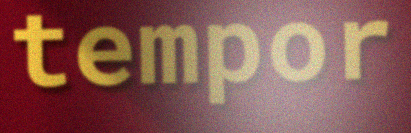
tempor